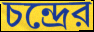
চন্দ্রের